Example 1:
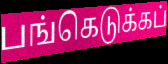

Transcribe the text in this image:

பங்கெடுக்கப்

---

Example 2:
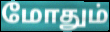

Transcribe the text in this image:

மோதும்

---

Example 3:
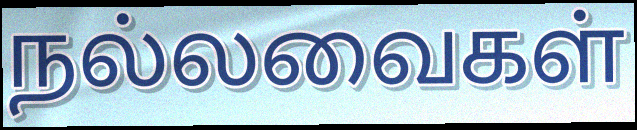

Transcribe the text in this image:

நல்லவைகள்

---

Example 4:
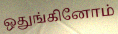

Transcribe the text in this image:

ஒதுங்கினோம்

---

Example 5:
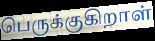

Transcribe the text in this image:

பெருக்குகிறாள்